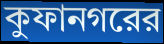
কুফানগরের